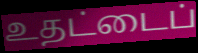
உதட்டைப்